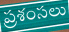
ప్రశంసలు